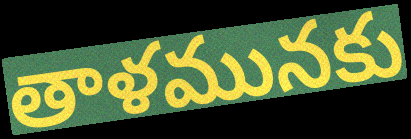
తాళమునకు